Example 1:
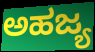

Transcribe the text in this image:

ಅಹಜ್ಯ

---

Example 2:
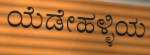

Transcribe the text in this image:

ಯೆಡೇಹಳ್ಳಿಯ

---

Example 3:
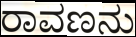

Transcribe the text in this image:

ರಾವಣನು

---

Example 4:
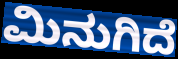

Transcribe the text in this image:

ಮಿನುಗಿದೆ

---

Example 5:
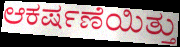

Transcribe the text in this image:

ಆಕರ್ಷಣೆಯಿತ್ತು